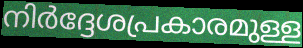
നിർദ്ദേശപ്രകാരമുള്ള